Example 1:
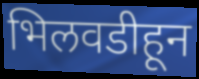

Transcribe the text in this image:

भिलवडीहून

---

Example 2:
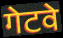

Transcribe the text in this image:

गेटवे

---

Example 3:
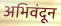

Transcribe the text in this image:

अभिवंदून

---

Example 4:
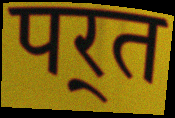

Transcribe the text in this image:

पर्त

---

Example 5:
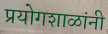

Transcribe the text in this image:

प्रयोगशाळांनी